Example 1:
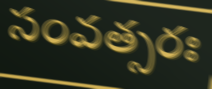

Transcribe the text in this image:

సంవత్సరః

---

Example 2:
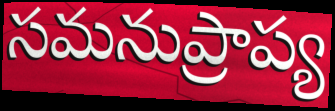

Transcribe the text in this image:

సమనుప్రాప్య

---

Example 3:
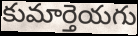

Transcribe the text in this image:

కుమార్తెయగు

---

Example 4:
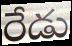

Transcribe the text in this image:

రేడు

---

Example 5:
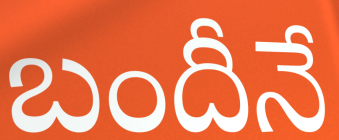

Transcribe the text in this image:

బందీనే